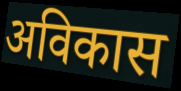
अविकास